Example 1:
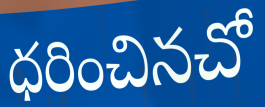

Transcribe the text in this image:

ధరించినచో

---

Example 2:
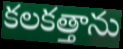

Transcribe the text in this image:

కలకత్తాను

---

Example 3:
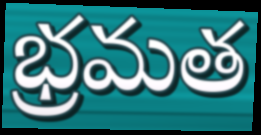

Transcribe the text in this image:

భ్రమత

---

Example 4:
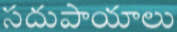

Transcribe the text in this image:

సదుపాయాలు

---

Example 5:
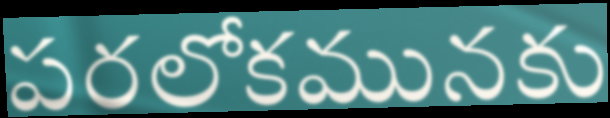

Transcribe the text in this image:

పరలోకమునకు